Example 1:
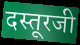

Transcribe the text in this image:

दस्तूरजी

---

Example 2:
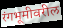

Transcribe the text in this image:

रंगभूमीवरील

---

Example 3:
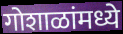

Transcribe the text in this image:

गोशाळांमध्ये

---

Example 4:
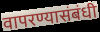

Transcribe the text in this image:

वापरण्यासंबंधी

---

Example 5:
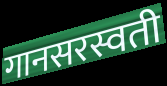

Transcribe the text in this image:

गानसरस्वती